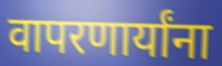
वापरणार्यांना